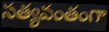
సత్యవంతంగా